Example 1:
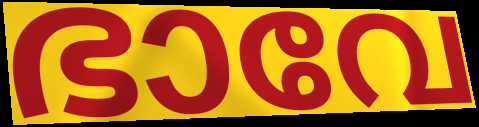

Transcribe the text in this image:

ഭാവേ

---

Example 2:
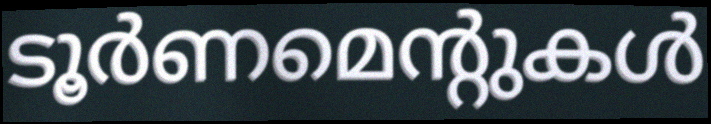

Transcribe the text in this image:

ടൂർണമെന്റുകൾ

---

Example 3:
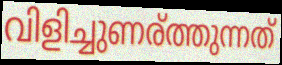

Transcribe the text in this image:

വിളിച്ചുണര്ത്തുന്നത്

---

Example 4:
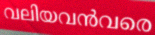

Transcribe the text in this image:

വലിയവൻവരെ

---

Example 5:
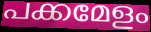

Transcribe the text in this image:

പക്കമേളം